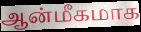
ஆன்மீகமாக